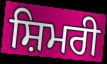
ਸ਼ਿਮਰੀ